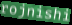
rojnishi